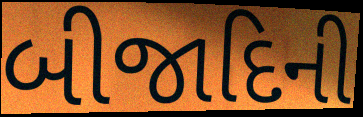
બીજાદિની